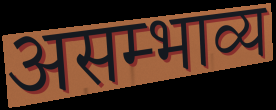
असम्भाव्य